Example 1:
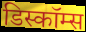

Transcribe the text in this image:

डिस्कॉम्स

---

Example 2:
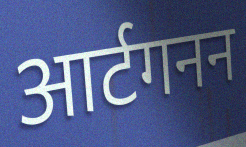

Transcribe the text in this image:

आर्टगनन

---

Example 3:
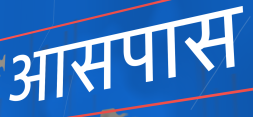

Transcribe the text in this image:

आसपास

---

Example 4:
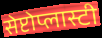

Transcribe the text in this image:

सेप्टोप्लास्टी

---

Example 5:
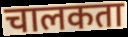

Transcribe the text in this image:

चालकता